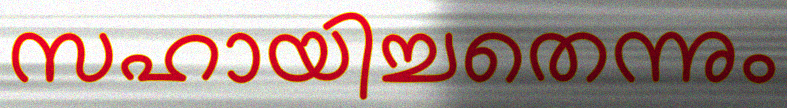
സഹായിച്ചതെന്നും